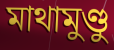
মাথামুণ্ডু